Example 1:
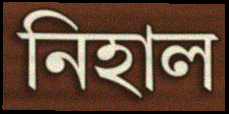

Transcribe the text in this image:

নিহাল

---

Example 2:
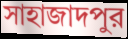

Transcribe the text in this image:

সাহাজাদপুর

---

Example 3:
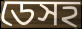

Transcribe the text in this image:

ডেসহ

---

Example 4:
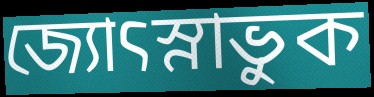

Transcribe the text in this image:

জ্যোৎস্নাভুক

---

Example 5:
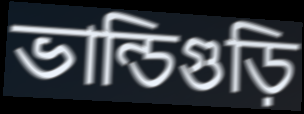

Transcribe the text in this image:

ভান্ডিগুড়ি